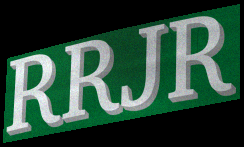
RRJR